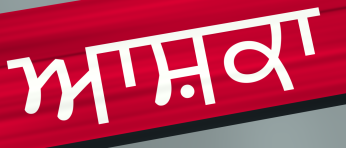
ਆਸ਼ਕਾ